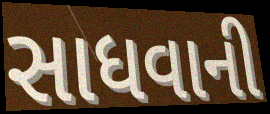
સાધવાની